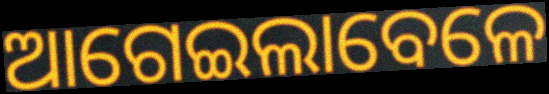
ଆଗେଇଲାବେଳେ